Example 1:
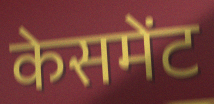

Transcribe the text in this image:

केसमेंट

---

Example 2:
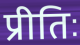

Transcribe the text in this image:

प्रीतिः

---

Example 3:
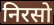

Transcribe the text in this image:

निरसो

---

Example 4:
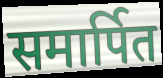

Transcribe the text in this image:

समार्पित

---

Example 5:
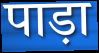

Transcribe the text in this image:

पाड़ा